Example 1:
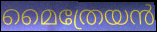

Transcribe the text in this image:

മൈത്രേയൻ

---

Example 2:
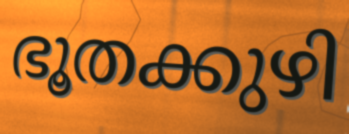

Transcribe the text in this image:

ഭൂതക്കുഴി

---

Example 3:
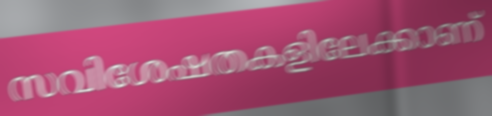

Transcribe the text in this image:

സവിശേഷതകളിലേക്കാണ്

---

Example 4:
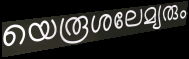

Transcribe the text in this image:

യെരൂശലേമ്യരും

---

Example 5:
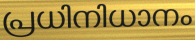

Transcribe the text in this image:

പ്രധിനിധാനം